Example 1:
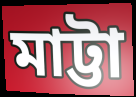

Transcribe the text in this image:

মাট্টা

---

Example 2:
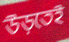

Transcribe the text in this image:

উড়তেই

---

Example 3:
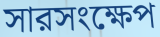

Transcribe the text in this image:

সারসংক্ষেপ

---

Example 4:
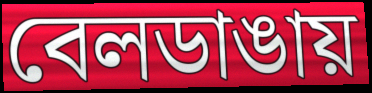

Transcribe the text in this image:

বেলডাঙায়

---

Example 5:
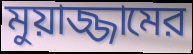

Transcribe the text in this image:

মুয়াজ্জামের